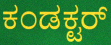
ಕಂಡಕ್ಟರ್